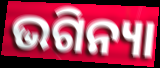
ଭଗିନ୍ୟା